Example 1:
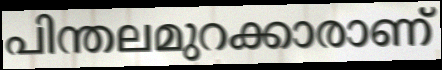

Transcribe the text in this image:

പിന്തലമുറക്കാരാണ്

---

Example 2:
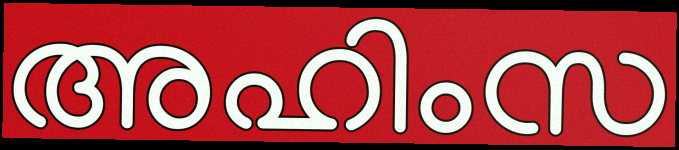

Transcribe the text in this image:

അഹിംസ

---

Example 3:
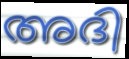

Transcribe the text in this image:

അദി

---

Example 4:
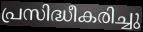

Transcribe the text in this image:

പ്രസിദ്ധീകരിച്ചു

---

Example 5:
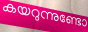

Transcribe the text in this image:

കയറുന്നുണ്ടോ